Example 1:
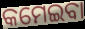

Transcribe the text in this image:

କମେଇବା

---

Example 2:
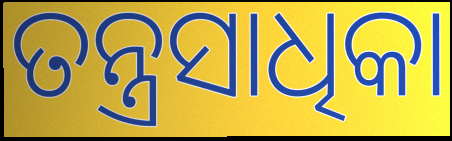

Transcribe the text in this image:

ତନ୍ତ୍ରସାଧିକା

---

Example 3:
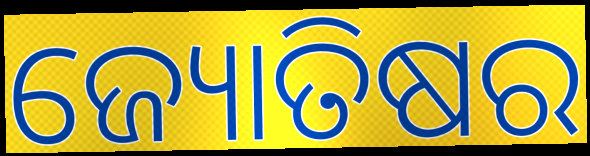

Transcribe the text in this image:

ଜ୍ୟୋତିଷର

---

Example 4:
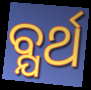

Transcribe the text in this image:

ବ୍ଯର୍ଥ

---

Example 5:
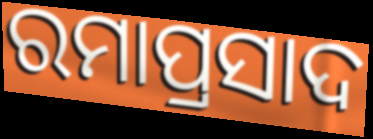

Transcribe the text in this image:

ରମାପ୍ରସାଦ